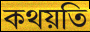
কথয়তি